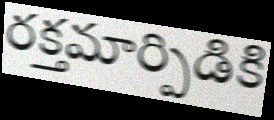
రక్తమార్పిడికి